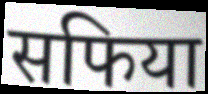
सफिया